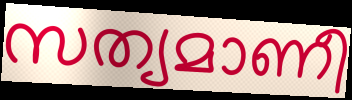
സത്യമാണീ